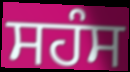
ਸਹੰਸ